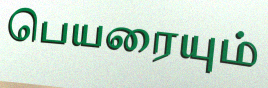
பெயரையும்